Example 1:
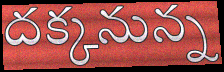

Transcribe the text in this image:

దక్కనున్న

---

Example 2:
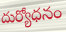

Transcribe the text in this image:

దుర్యోధనం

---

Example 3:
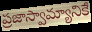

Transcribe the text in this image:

ప్రజాస్వామ్యానికే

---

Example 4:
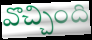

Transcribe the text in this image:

వొచ్చింది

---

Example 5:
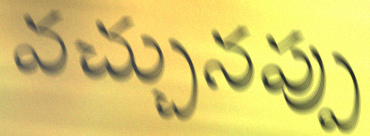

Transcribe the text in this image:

వచ్చునప్పు